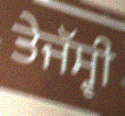
ਤੇਜੱਸ੍ਵੀ